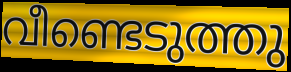
വീണ്ടെടുത്തു